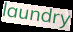
laundry